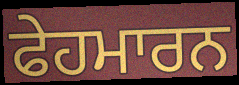
ਫੇਹਮਾਰਨ